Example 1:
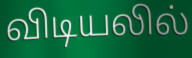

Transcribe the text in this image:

விடியலில்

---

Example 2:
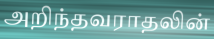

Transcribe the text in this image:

அறிந்தவராதலின்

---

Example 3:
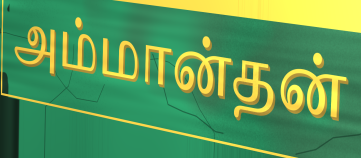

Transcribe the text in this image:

அம்மான்தன்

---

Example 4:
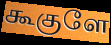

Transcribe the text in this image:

கூகுளே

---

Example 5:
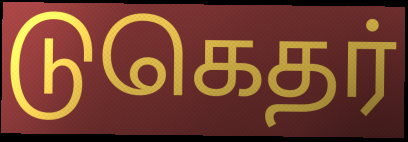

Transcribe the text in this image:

டுகெதர்